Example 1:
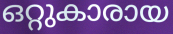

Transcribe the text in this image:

ഒറ്റുകാരായ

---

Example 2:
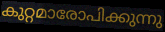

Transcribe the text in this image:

കുറ്റമാരോപിക്കുന്നു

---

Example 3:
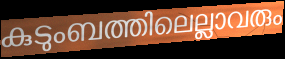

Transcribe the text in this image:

കുടുംബത്തിലെല്ലാവരും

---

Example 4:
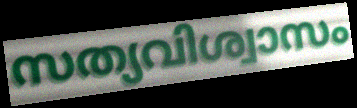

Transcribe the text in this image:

സത്യവിശ്വാസം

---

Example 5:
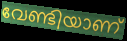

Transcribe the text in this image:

വേണ്ടിയാണ്